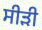
ਸੀੜੀ